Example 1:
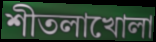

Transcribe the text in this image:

শীতলাখোলা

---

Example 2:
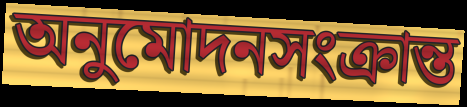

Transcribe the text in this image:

অনুমোদনসংক্রান্ত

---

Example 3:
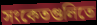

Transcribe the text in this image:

সংকেতগুলিতে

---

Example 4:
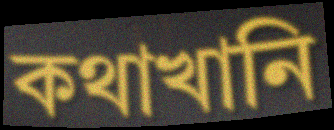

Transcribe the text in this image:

কথাখানি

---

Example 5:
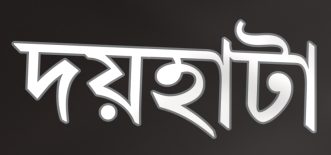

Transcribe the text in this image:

দয়হাটা